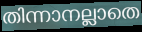
തിന്നാനല്ലാതെ